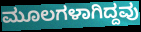
ಮೂಲಗಳಾಗಿದ್ದವು